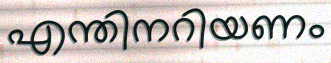
എന്തിനറിയണം